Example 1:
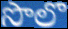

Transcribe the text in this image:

సొలొ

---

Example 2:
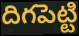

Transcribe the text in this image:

దిగపెట్టి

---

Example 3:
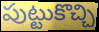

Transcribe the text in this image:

పుట్టుకొచ్చి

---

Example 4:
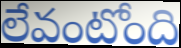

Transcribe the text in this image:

లేవంటోంది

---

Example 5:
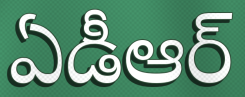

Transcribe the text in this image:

ఏడీఆర్